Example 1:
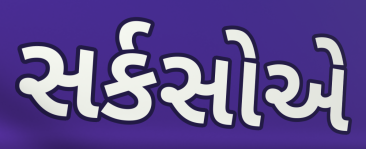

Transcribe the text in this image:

સર્કસોએ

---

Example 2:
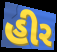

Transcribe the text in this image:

હીર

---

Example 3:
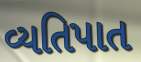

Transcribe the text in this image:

વ્યતિપાત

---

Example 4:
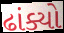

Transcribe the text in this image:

ઢાંક્યો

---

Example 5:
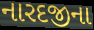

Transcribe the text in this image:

નારદજીના